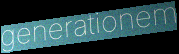
generationem